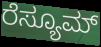
ರೆಸ್ಯೂಮ್